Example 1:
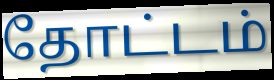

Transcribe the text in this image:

தோட்டம்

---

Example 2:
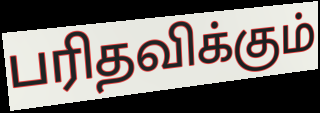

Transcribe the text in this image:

பரிதவிக்கும்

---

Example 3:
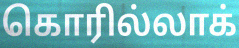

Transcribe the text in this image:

கொரில்லாக்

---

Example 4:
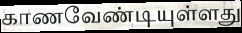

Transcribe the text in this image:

காணவேண்டியுள்ளது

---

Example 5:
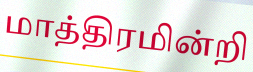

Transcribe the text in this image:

மாத்திரமின்றி